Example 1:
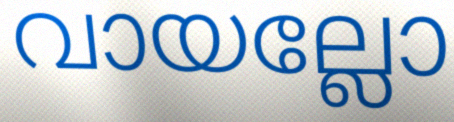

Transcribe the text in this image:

വായല്ലോ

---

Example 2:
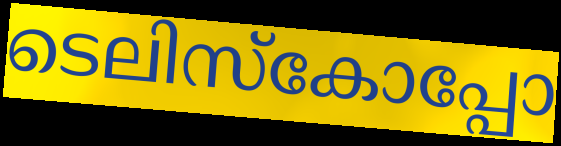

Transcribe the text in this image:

ടെലിസ്കോപ്പോ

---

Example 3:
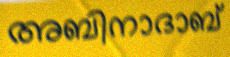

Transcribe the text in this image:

അബിനാദാബ്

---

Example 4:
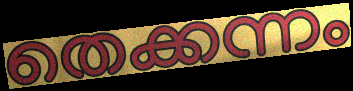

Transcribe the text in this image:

തെക്കന്നം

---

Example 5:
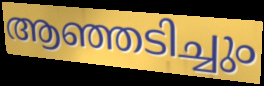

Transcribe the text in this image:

ആഞ്ഞടിച്ചും